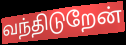
வந்திடுறேன்